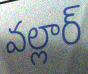
వల్లార్